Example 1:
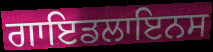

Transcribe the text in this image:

ਗਾਇਡਲਾਇਨਸ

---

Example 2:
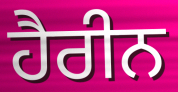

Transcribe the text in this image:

ਹੈਰੀਨ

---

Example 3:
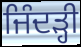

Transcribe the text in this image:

ਜਿੰਦੜ੍ਹੀ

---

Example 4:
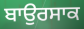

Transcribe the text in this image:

ਬਾਉਰਸਾਕ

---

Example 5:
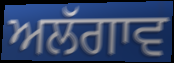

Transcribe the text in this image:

ਅਲੱਗਾਵ